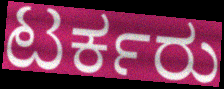
ಟರ್ಕರು